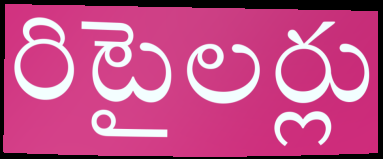
రిటైలర్లు